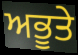
ਅਭੂਤੇ